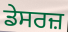
ਡੇਸਰਜ਼